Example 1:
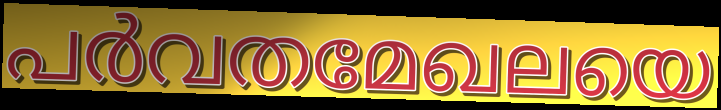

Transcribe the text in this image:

പർവതമേഖലയെ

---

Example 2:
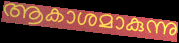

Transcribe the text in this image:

ആകാശമാകുന്നു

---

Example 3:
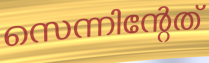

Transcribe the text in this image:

സെന്നിന്റേത്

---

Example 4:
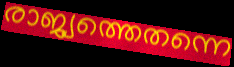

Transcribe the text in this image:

രാജ്യത്തെതന്നെ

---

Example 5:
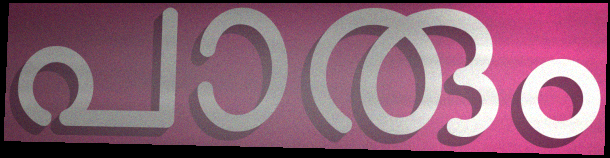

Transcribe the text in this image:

പാരും